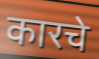
कारचे